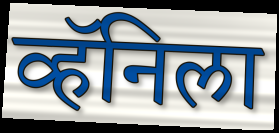
व्हॅनिला